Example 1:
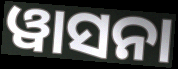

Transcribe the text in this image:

ୱାସନା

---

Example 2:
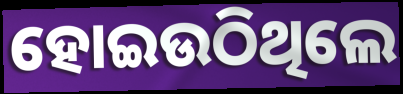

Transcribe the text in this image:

ହୋଇଉଠିଥିଲେ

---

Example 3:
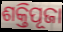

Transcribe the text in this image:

ଶକ୍ତିପୂଜା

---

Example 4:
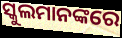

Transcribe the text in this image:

ସ୍କୁଲମାନଙ୍କରେ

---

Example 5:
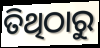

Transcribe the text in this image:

ତିଥିଠାରୁ